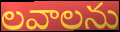
లవాలను